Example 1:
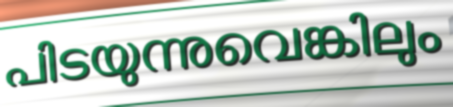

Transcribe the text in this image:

പിടയുന്നുവെങ്കിലും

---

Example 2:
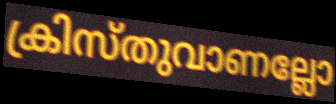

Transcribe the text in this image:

ക്രിസ്തുവാണല്ലോ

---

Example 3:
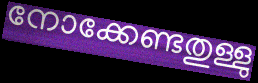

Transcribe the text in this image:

നോക്കേണ്ടതുള്ളു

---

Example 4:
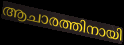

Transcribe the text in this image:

ആചാരത്തിനായി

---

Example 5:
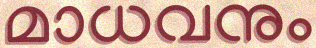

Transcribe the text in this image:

മാധവനും